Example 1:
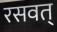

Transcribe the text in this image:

रसवत्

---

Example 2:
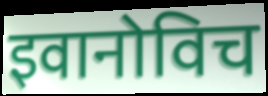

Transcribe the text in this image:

इवानोविच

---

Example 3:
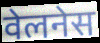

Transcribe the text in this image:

वेलनेस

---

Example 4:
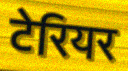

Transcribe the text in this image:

टेरियर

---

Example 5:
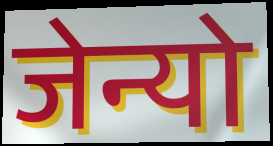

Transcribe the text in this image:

जेन्यो